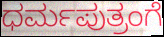
ಧರ್ಮಪುತ್ರಂಗೆ